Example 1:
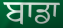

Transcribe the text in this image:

ਬਾਡਾ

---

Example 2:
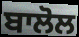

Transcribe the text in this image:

ਬਾਲੋਲ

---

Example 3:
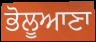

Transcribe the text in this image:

ਭੋਲੂਆਣਾ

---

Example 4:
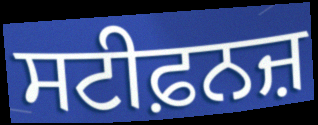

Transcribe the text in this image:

ਸਟੀਫ਼ਨਜ਼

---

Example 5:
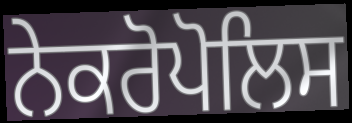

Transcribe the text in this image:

ਨੇਕਰੋਪੋਲਿਸ